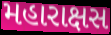
મહારાક્ષસ